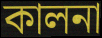
কালনা